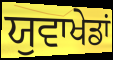
ਯੁਵਾਖੇਡਾਂ